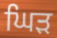
ਘਿੜ